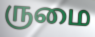
ருமை